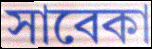
সাবেকা